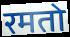
रमतो